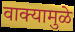
वाक्यामुळे